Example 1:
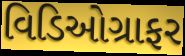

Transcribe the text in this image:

વિડિઓગ્રાફર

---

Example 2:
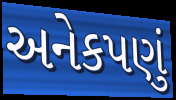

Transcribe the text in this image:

અનેકપણું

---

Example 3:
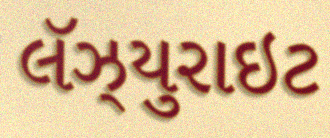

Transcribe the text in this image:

લૅઝ્યુરાઇટ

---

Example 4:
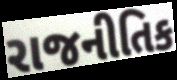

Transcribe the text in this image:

રાજનીતિક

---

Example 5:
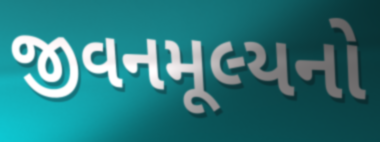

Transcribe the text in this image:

જીવનમૂલ્યનો